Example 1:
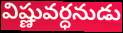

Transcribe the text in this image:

విష్ణువర్ధనుడు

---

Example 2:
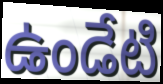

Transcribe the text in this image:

ఉండేటి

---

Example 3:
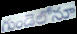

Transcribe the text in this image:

గుండెలోనూ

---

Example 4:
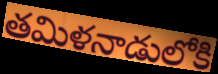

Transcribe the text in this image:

తమిళనాడులోకి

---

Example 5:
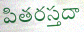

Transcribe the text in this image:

పితరస్తదా